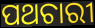
ପଥଚାରୀ